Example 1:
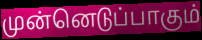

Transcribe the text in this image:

முன்னெடுப்பாகும்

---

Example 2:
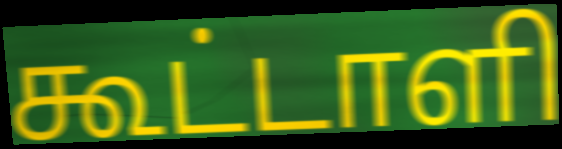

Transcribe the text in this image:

கூட்டாளி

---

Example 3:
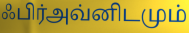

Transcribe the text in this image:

ஃபிர்அவ்னிடமும்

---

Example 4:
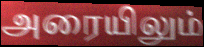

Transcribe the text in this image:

அரையிலும்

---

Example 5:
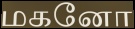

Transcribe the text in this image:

மகனோ